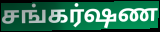
சங்கர்ஷண